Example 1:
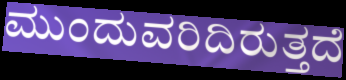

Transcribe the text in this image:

ಮುಂದುವರಿದಿರುತ್ತದೆ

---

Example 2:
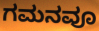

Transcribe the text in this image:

ಗಮನವೂ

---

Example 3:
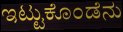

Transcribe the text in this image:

ಇಟ್ಟುಕೊಂಡೆನು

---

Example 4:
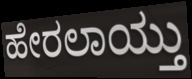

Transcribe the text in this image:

ಹೇರಲಾಯ್ತು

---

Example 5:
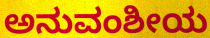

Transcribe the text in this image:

ಅನುವಂಶೀಯ